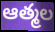
ఆత్మల